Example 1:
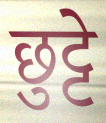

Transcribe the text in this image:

छुट्टे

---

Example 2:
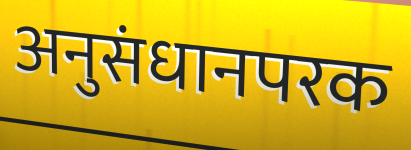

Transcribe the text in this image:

अनुसंधानपरक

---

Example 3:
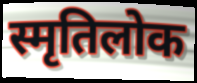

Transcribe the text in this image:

स्मृतिलोक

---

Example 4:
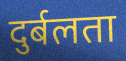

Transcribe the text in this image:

दुर्बलता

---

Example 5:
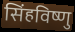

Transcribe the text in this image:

सिंहविष्णु